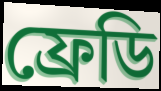
ফ্রেডি